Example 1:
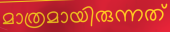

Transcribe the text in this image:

മാത്രമായിരുന്നത്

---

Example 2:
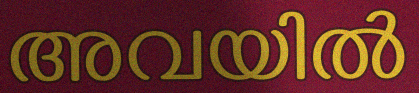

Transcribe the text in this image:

അവയിൽ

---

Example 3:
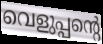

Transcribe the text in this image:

വെളുപ്പന്റെ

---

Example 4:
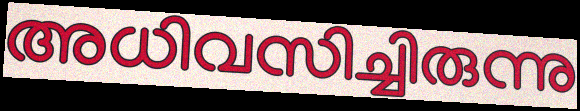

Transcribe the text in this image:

അധിവസിച്ചിരുന്നു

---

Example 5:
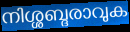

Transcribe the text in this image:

നിശ്ശബ്ദരാവുക